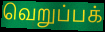
வெறுப்பக்